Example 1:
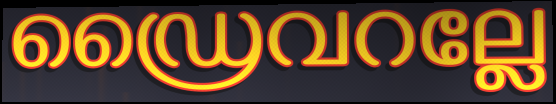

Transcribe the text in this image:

ഡ്രൈവറല്ലേ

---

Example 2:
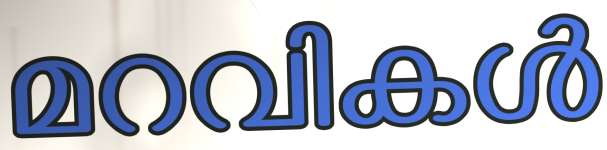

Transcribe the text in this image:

മറവികൾ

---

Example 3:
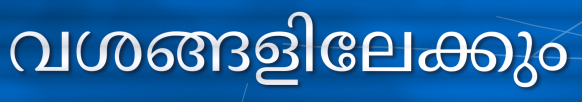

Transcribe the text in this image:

വശങ്ങളിലേക്കും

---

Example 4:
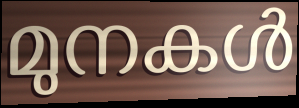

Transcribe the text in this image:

മുനകൾ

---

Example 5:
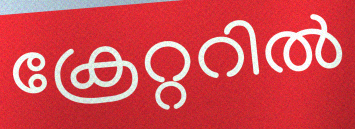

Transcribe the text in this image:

ക്രേറ്ററിൽ